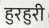
हुरहुरी